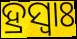
ହ୍ରସ୍ଵାଃ